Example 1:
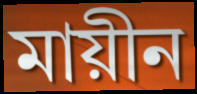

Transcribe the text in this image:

মায়ীন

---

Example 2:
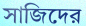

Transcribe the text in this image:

সাজিদের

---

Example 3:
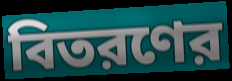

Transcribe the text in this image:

বিতরণের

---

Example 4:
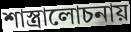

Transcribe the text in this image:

শাস্ত্রালোচনায়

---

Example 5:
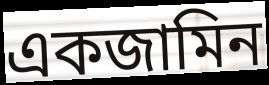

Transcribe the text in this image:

একজামিন